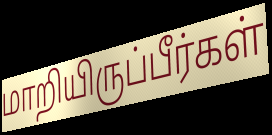
மாறியிருப்பீர்கள்